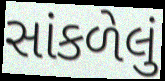
સાંકળેલું